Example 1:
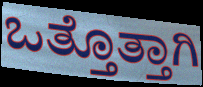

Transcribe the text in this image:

ಒತ್ತೊತ್ತಾಗಿ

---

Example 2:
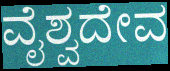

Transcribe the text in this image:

ವೈಶ್ವದೇವ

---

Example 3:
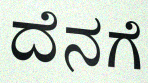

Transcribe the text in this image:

ದೆನಗೆ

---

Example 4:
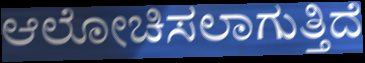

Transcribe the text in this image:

ಆಲೋಚಿಸಲಾಗುತ್ತಿದೆ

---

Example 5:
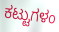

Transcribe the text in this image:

ಕಟ್ಟುಗಳಂ